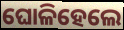
ଘୋଳିହେଲେ